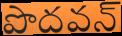
పొదవన్